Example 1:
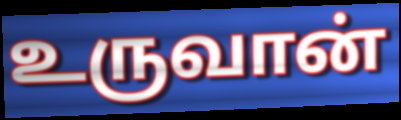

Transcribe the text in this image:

உருவான்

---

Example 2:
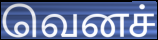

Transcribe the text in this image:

வெனச்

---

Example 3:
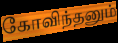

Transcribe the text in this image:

கோவிந்தனும்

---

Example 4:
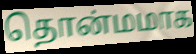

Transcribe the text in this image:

தொன்மமாக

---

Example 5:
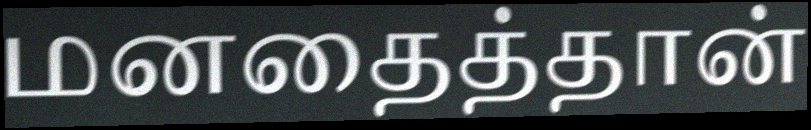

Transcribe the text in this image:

மனதைத்தான்